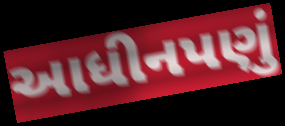
આધીનપણું